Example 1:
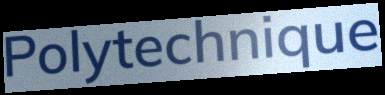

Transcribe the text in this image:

Polytechnique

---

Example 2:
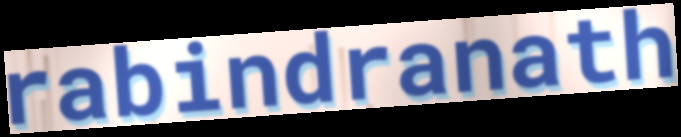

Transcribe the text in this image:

rabindranath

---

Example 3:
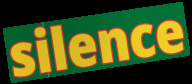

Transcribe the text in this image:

silence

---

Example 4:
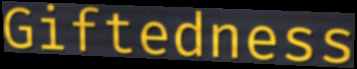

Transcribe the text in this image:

Giftedness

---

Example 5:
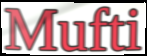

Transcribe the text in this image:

Mufti